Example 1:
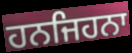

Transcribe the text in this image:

ਹਨਜਿਹਨਾ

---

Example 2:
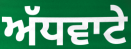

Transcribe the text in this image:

ਅੱਧਵਾਟੇ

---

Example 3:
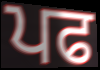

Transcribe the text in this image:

ਪਫ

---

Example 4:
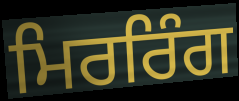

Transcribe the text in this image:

ਮਿਰਰਿੰਗ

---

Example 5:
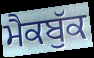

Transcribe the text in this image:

ਮੈਕਬੁੱਕ